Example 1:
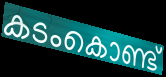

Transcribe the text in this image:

കടംകൊണ്ട്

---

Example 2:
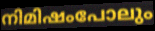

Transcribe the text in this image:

നിമിഷംപോലും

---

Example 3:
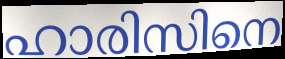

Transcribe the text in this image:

ഹാരിസിനെ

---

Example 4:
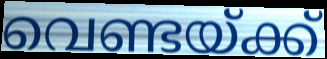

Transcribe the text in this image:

വെണ്ടയ്ക്ക്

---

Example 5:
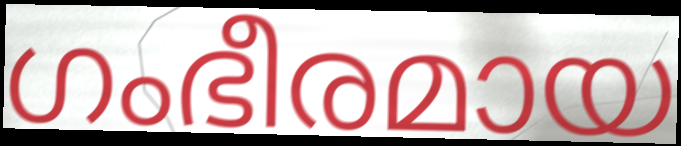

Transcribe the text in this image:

ഗംഭീരമായ